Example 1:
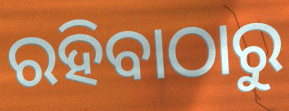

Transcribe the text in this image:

ରହିବାଠାରୁ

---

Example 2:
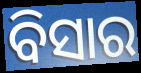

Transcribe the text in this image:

ବିସାର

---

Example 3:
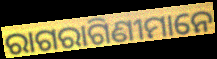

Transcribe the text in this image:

ରାଗରାଗିଣୀମାନେ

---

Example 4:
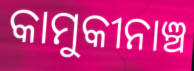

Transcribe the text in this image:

କାମୁକୀନାଞ୍ଚ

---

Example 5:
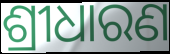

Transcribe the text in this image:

ଶ୍ରୀଧାରଣ